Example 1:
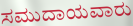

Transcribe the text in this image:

ಸಮುದಾಯವಾರು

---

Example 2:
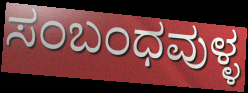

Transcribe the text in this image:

ಸಂಬಂಧವುಳ್ಳ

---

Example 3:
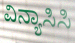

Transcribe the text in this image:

ವಿನ್ಯಾಸಿಸಿ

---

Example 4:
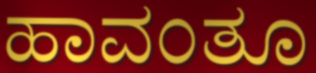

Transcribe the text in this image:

ಹಾವಂತೂ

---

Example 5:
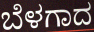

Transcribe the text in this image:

ಬೆಳಗಾದ